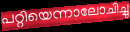
പറ്റിയെന്നാലോചിച്ചു